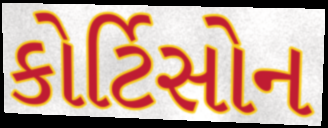
કોર્ટિસોન